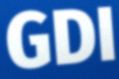
GDI